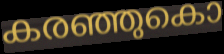
കരഞ്ഞുകൊ